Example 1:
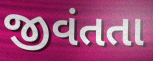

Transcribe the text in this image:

જીવંતતા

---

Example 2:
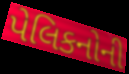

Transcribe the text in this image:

પેલિકનોની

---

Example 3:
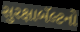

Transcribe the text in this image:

સુરક્ષાબૅલ્ટનો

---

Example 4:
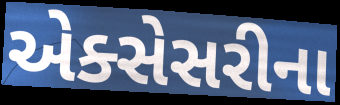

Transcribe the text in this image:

એક્સેસરીના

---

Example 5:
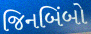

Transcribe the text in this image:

જિનબિંબો